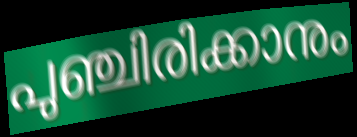
പുഞ്ചിരിക്കാനും